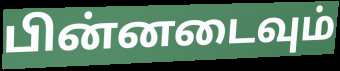
பின்னடைவும்